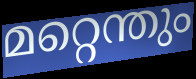
മറ്റെന്തും